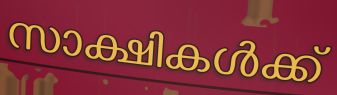
സാക്ഷികൾക്ക്